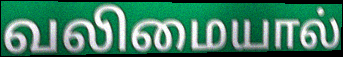
வலிமையால்